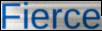
Fierce